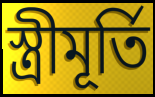
স্ত্রীমূর্তি